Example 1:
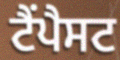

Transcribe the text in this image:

ਟੈਂਪੈਸਟ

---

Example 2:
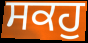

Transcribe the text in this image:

ਸਕਹੁ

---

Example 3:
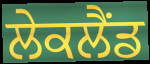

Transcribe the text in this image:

ਲੇਕਲੈਂਡ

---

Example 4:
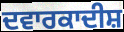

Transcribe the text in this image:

ਦਵਾਰਕਾਦੀਸ਼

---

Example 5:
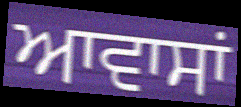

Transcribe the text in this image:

ਆਵਾਸਾਂ